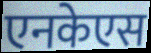
एनकेएस